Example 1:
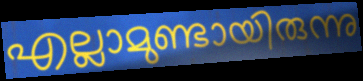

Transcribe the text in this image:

എല്ലാമുണ്ടായിരുന്നു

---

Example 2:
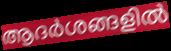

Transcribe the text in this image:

ആദർശങ്ങളിൽ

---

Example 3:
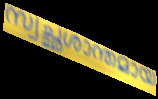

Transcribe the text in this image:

സ്വച്ഛശാന്തമായ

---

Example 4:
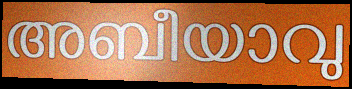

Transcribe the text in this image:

അബീയാവു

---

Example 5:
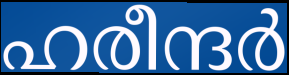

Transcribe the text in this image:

ഹരീന്ദർ